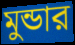
মুন্ডার